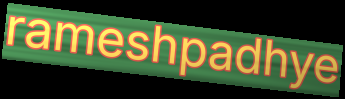
rameshpadhye